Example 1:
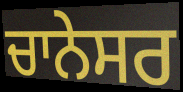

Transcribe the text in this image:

ਚਾਨੇਸਰ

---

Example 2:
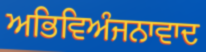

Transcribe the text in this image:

ਅਭਿਵਿਅੰਜਨਾਵਾਦ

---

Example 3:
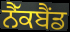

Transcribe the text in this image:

ਨੈੱਕਬੈਂਡ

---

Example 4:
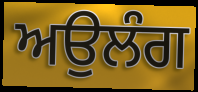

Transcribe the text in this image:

ਅਉਲੰਗ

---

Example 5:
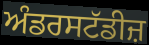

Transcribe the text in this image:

ਅੰਡਰਸਟੱਡੀਜ਼